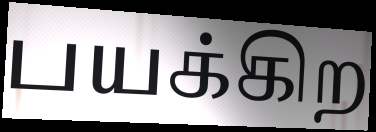
பயக்கிற